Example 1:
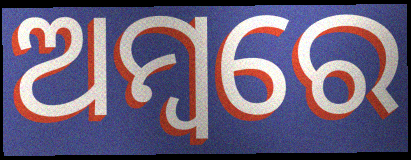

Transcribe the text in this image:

ଅମ୍ବରେ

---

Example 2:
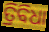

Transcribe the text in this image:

ତ୍ରିବିଧା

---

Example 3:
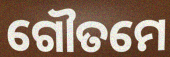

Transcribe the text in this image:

ଗୌତମେ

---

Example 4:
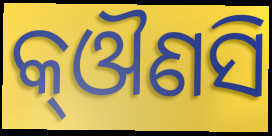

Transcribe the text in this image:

କ୍ଔଣସି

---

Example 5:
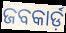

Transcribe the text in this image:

ଜବକାର୍ଡ଼